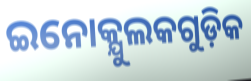
ଇନୋକ୍ଯୁଲକଗୁଡ଼ିକ